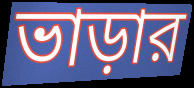
ভাড়ার